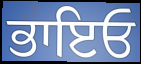
ਭਾਇਓ